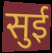
सुई